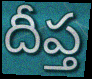
దీప్త